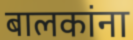
बालकांना